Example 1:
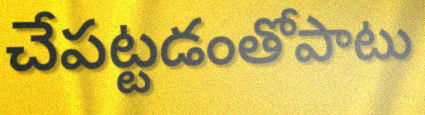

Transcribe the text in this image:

చేపట్టడంతోపాటు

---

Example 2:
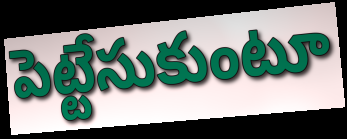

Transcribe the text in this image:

పెట్టేసుకుంటూ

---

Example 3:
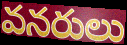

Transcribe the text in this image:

వనరులు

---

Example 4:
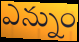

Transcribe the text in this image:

ఎన్నుం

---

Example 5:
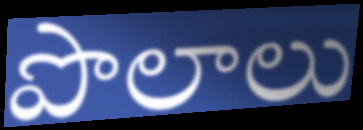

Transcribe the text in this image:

పొలాలు